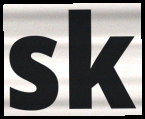
sk